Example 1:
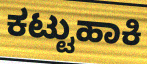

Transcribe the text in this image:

ಕಟ್ಟುಹಾಕಿ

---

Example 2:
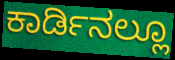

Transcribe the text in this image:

ಕಾರ್ಡಿನಲ್ಲೂ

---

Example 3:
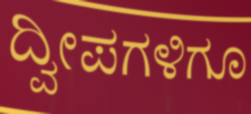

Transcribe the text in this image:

ದ್ವೀಪಗಳಿಗೂ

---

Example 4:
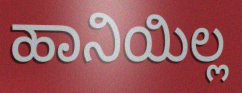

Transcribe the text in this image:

ಹಾನಿಯಿಲ್ಲ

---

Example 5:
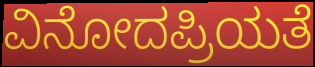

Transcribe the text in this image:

ವಿನೋದಪ್ರಿಯತೆ